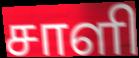
சாளி